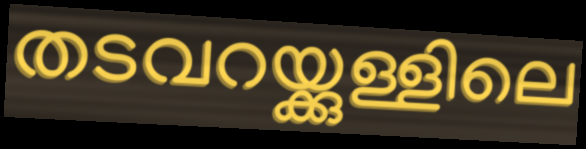
തടവറയ്ക്കുള്ളിലെ